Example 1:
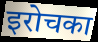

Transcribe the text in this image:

इरोचका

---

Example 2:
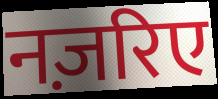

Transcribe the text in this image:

नज़रिए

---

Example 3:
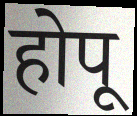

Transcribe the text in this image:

होपू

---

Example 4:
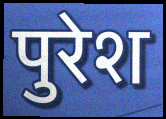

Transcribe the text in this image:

पुरेश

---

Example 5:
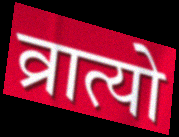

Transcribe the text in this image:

व्रात्यो